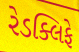
રેડક્લિફે